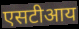
एसटीआय